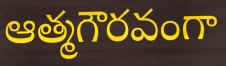
ఆత్మగౌరవంగా